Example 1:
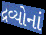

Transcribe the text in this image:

દ્રવ્યોનાં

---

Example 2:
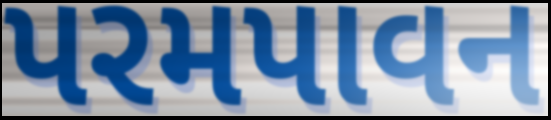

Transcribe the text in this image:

પરમપાવન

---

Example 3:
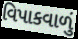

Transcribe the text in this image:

વિપાકવાળું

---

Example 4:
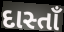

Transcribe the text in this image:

દાસ્તાઁ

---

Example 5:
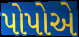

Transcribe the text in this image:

પોપોએ